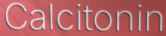
Calcitonin